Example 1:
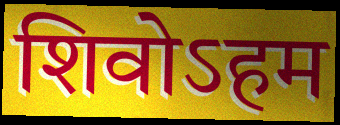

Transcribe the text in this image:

शिवोऽहम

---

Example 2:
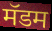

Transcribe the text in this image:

मॅडम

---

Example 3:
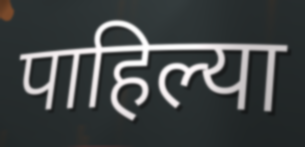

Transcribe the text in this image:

पाहिल्या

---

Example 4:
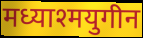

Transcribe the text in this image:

मध्याश्मयुगीन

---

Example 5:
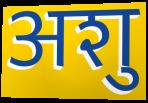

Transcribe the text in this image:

अशु